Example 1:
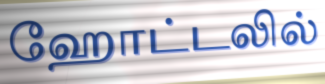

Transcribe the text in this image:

ஹோட்டலில்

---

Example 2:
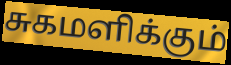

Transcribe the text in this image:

சுகமளிக்கும்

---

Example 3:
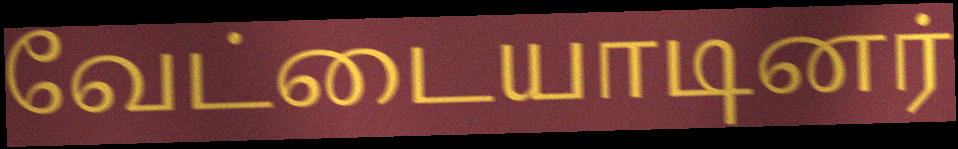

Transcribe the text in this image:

வேட்டையாடினர்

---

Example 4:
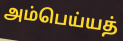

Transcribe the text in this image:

அம்பெய்யத்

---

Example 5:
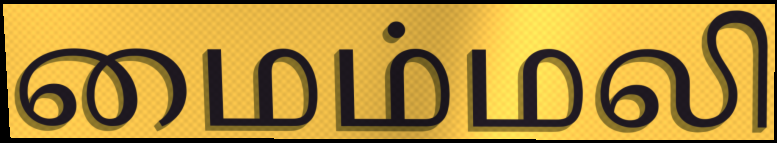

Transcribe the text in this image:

மைம்மலி